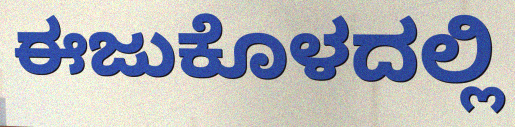
ಈಜುಕೊಳದಲ್ಲಿ